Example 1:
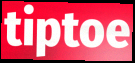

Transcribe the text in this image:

tiptoe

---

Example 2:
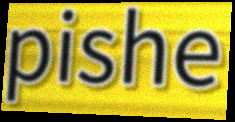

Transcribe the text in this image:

pishe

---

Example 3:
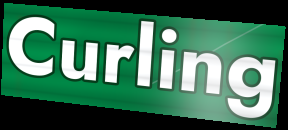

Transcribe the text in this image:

Curling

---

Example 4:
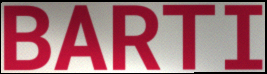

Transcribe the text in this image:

BARTI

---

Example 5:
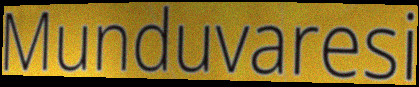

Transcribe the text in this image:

Munduvaresi